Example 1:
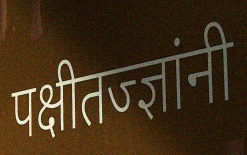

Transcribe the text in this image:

पक्षीतज्ज्ञांनी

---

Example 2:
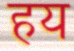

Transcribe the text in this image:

हय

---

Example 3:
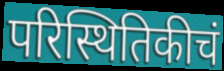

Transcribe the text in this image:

परिस्थितिकीचं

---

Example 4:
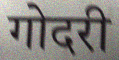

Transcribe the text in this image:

गोदरी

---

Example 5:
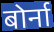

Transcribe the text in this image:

बोर्ना